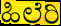
ಹಿಲೆರಿ